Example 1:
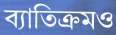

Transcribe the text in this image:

ব্যাতিক্রমও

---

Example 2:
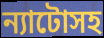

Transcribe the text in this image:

ন্যাটোসহ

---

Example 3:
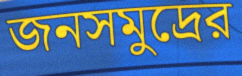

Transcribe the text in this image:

জনসমুদ্রের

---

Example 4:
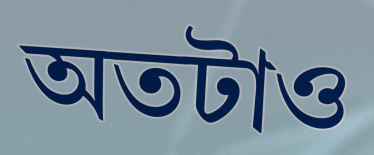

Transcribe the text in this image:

অতটাও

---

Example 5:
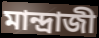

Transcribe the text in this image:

মান্দ্রাজী